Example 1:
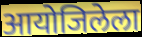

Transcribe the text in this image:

आयोजिलेला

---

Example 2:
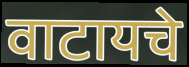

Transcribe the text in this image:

वाटायचे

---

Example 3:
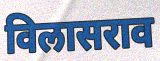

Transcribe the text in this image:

विलासराव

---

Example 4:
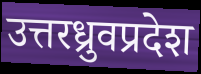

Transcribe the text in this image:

उत्तरध्रुवप्रदेश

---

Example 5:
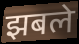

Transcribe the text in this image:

झबले